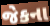
જેકના